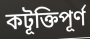
কটূক্তিপূর্ণ